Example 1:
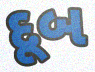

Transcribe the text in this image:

દૂબ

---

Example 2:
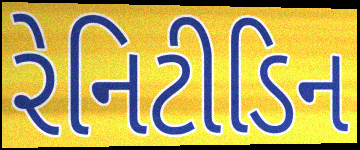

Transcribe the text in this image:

રેનિટીડિન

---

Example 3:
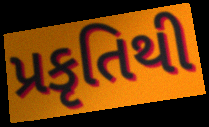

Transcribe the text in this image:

પ્રકૃતિથી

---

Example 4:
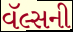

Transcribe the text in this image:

વૅલ્સની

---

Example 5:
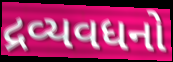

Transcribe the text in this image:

દ્રવ્યવધનો